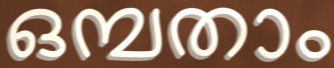
ഒമ്പതാം